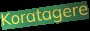
Koratagere